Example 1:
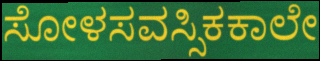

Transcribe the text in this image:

ಸೋಳಸವಸ್ಸಿಕಕಾಲೇ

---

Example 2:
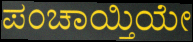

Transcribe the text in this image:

ಪಂಚಾಯ್ತಿಯೇ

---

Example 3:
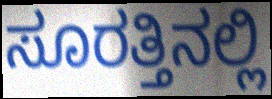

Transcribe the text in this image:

ಸೂರತ್ತಿನಲ್ಲಿ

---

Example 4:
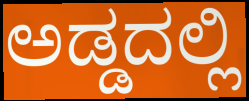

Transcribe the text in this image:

ಅಡ್ಡದಲ್ಲಿ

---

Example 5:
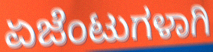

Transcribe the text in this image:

ಏಜೆಂಟುಗಳಾಗಿ